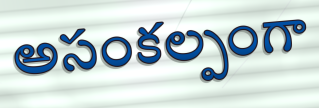
అసంకల్పంగా